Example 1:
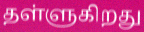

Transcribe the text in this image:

தள்ளுகிறது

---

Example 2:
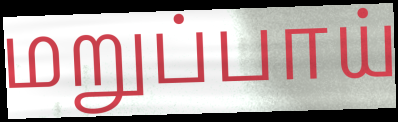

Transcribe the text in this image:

மறுப்பாய்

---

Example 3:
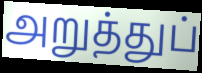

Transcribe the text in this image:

அறுத்துப்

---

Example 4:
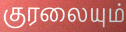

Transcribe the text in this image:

குரலையும்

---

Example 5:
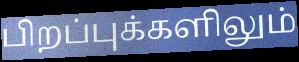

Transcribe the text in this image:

பிறப்புக்களிலும்